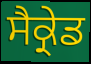
ਸੈਕ੍ਰੇਡ